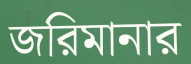
জরিমানার